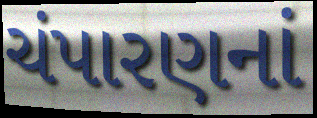
ચંપારણનાં